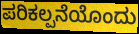
ಪರಿಕಲ್ಪನೆಯೊಂದು